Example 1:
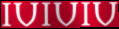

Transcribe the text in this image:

IUIUIU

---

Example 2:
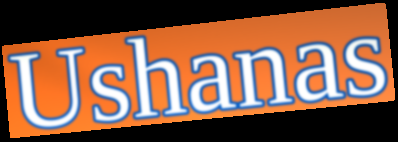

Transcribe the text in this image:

Ushanas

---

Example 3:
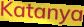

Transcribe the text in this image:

Katanya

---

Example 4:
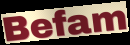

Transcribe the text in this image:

Befam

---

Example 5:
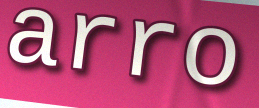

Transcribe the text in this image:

arro